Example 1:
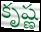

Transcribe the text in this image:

కృష్ణ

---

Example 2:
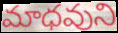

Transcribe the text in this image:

మాధవుని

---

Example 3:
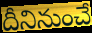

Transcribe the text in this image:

దీనినుంచే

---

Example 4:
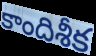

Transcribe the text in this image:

కాందిశీక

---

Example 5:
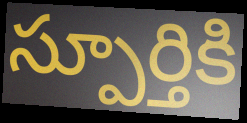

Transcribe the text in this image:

స్పూర్తికి